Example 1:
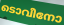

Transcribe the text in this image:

ടൊവീനോ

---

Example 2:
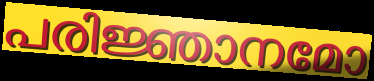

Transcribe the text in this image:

പരിജ്ഞാനമോ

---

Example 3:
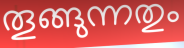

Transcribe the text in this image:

തൂങ്ങുന്നതും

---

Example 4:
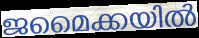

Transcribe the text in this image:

ജമൈക്കയിൽ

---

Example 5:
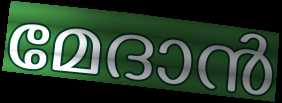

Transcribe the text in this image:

മേദാൻ